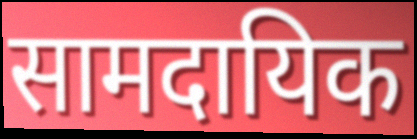
सामदायिक